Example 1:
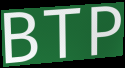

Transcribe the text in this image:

BTP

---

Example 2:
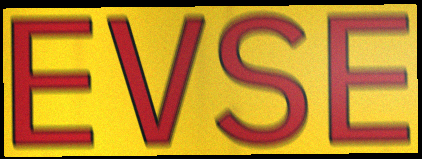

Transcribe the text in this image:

EVSE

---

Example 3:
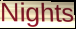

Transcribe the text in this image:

Nights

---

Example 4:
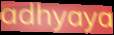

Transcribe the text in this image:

adhyaya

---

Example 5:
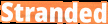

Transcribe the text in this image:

Stranded